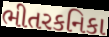
ભીતરકનિકા